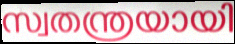
സ്വതന്ത്രയായി